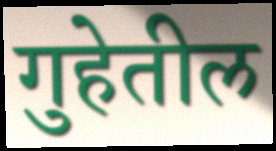
गुहेतील